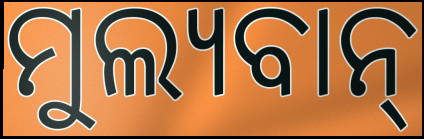
ମୁଲ୍ୟବାନ୍